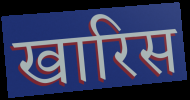
खारिस